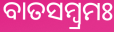
ବାତସମ୍ବ୍ରମଃ